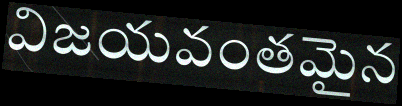
విజయవంతమైన